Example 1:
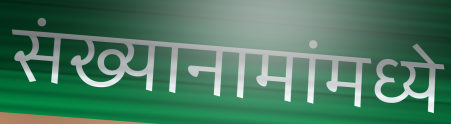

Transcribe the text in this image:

संख्यानामांमध्ये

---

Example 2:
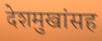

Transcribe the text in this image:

देशमुखांसह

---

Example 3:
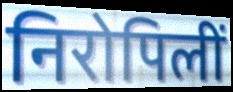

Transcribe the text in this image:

निरोपिलीं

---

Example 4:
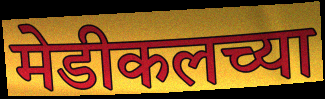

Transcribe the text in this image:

मेडीकलच्या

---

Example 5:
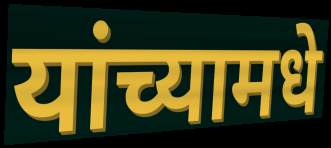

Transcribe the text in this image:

यांच्यामधे